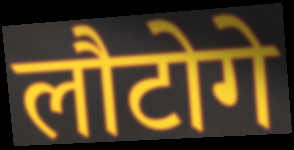
लौटोगे